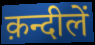
क़न्दीलें